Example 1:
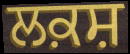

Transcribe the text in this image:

ਲਕ਼ਸ਼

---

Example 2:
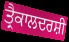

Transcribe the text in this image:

ਤ੍ਰੈਕਾਲਦਰਸ਼ੀ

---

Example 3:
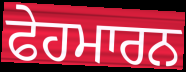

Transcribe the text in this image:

ਫੇਹਮਾਰਨ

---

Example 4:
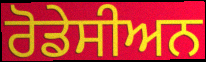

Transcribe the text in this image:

ਰੋਡੇਸੀਅਨ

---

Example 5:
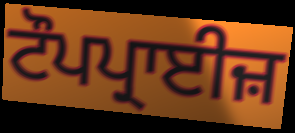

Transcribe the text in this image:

ਟੌਪਪ੍ਰਾਈਜ਼